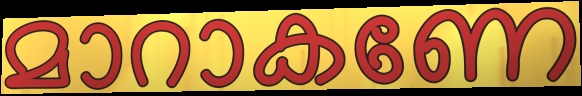
മാറാകണേ